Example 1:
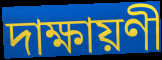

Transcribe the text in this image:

দাক্ষায়ণী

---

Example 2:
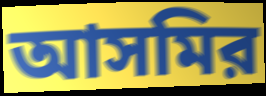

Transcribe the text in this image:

আসমির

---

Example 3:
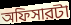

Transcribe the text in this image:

অফিসারটা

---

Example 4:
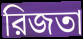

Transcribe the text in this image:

রিজতা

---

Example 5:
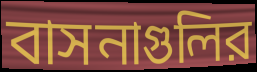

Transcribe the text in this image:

বাসনাগুলির